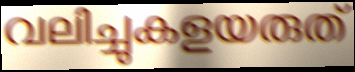
വലിച്ചുകളയരുത്